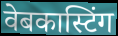
वेबकास्टिंग